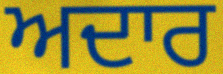
ਅਦਾਰ